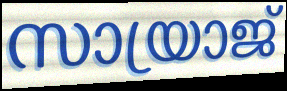
സായ്രാജ്